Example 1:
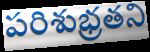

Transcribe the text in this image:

పరిశుభ్రతని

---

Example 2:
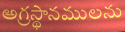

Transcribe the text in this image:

అగ్రస్థానములను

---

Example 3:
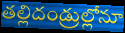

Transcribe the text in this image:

తల్లిదండ్రుల్లోనూ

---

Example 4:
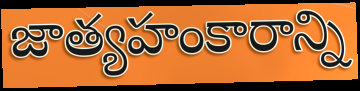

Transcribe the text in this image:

జాత్యహంకారాన్ని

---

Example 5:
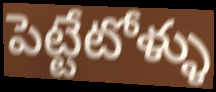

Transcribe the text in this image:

పెట్టేటోళ్ళు